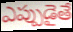
ఎప్పుడైతే